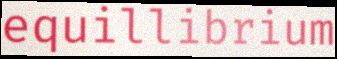
equillibrium